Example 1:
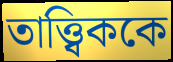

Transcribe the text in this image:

তাত্ত্বিককে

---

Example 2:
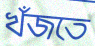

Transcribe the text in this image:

খঁজতে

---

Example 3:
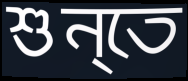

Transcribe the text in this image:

শুন্‌তে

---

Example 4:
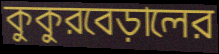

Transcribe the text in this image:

কুকুরবেড়ালের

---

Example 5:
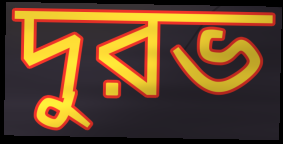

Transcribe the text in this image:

দুরভ